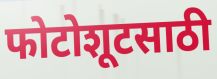
फोटोशूटसाठी